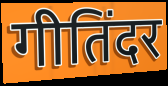
गीतिंदर